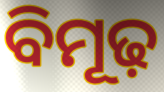
ବିମୂଢ଼